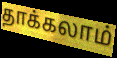
தாக்கலாம்